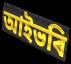
আইভৰি